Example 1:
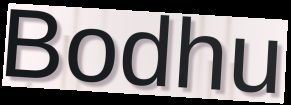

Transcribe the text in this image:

Bodhu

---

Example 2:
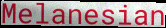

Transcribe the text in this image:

Melanesian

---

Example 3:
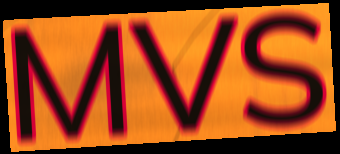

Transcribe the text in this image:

MVS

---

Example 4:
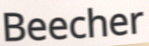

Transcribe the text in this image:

Beecher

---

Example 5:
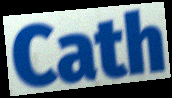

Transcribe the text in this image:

Cath